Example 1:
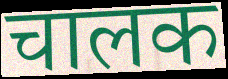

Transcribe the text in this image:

चालक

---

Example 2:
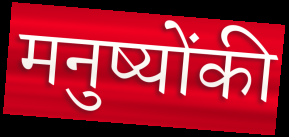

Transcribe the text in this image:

मनुष्योंकी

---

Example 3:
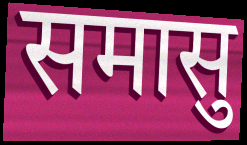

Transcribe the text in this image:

समासु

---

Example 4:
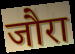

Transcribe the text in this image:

जौरा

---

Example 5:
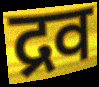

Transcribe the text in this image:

द्रव